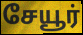
சேயூர்